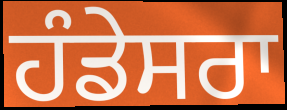
ਹੰਡੇਸਰਾ